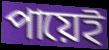
পায়েই